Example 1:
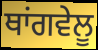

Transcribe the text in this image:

ਥਾਂਗਵੇਲੂ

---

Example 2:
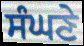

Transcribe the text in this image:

ਸੰਘਣੇ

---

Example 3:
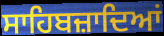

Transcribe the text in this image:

ਸਾਹਿਬਜ਼ਾਦਿਆਂ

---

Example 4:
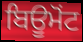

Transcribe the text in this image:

ਬਿਊਮੋਂਟ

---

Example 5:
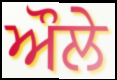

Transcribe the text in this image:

ਔਲੇ